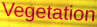
Vegetation